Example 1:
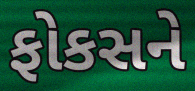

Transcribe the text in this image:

ફોકસને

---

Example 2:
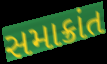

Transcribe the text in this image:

સમાક્રાંત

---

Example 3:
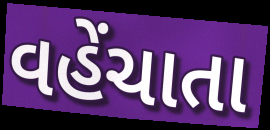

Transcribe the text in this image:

વહેંચાતા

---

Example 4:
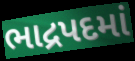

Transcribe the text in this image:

ભાદ્રપદમાં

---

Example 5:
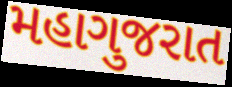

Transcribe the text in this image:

મહાગુજરાત